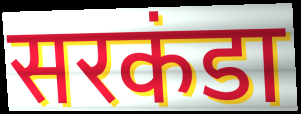
सरकंडा